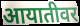
आयातीवर